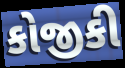
કોજીકી